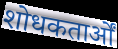
शोधकतार्ओं